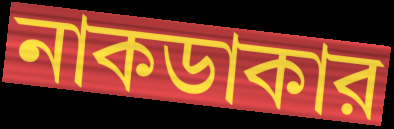
নাকডাকার